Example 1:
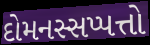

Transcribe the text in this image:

દોમનસ્સપ્પત્તો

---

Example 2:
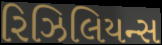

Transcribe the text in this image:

રિઝિલિયન્સ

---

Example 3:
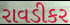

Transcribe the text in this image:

રાવડીકર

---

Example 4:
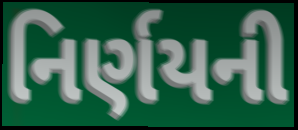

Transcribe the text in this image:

નિર્ણયની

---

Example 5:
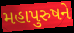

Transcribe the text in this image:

મહાપુરુષને